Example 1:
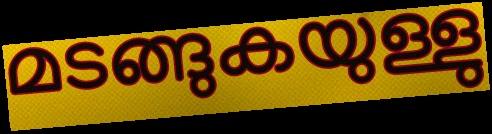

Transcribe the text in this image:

മടങ്ങുകയുള്ളു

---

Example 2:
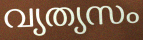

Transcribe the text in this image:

വ്യത്യസം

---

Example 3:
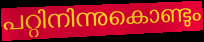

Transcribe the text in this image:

പറ്റിനിന്നുകൊണ്ടും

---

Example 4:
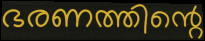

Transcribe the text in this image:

ഭരണത്തിന്റെ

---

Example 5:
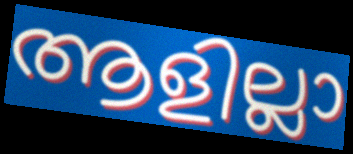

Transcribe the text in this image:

ആളില്ലാ